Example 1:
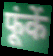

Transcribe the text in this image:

फूंकें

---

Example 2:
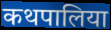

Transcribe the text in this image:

कथपालिया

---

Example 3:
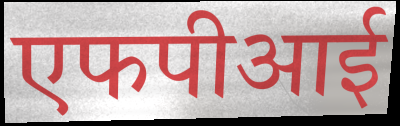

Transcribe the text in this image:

एफपीआई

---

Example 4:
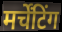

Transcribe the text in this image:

मर्चेंटिंग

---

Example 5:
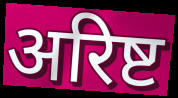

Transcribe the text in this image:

अरिष्ट